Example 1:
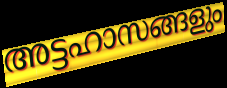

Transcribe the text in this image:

അട്ടഹാസങ്ങളും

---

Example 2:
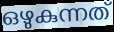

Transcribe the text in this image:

ഒഴുകുന്നത്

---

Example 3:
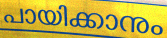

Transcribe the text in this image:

പായിക്കാനും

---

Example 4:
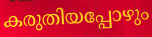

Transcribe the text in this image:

കരുതിയപ്പോഴും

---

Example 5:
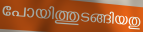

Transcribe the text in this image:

പോയിത്തുടങ്ങിയതു